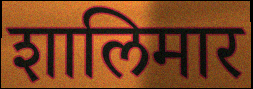
शालिमार